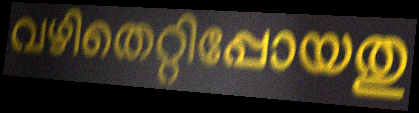
വഴിതെറ്റിപ്പോയതു